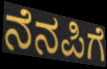
ನೆನಪಿಗೆ